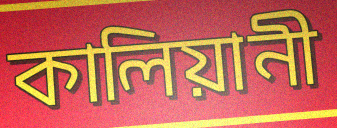
কালিয়ানী